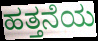
ಹತ್ತನೆಯ